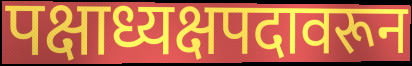
पक्षाध्यक्षपदावरून